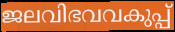
ജലവിഭവവകുപ്പ്